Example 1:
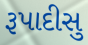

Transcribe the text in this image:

રૂપાદીસુ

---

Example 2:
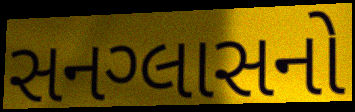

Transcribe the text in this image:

સનગ્લાસનો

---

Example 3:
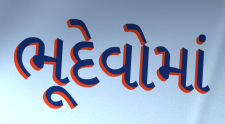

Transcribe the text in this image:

ભૂદેવોમાં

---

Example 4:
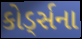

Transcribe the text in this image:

કોર્ડ્સના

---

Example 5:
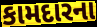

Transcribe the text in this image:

કામદારના